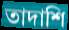
তাদাশি